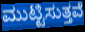
ಮುಟ್ಟಿಸುತ್ತವೆ